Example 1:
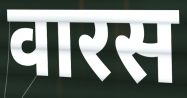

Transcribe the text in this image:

वारस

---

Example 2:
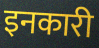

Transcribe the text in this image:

इनकारी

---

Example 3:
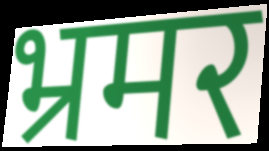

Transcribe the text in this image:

भ्रमर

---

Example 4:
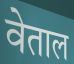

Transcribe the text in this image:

वेताल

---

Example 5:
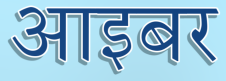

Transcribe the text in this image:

आइबर